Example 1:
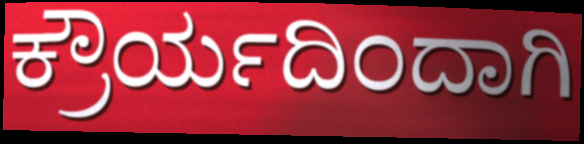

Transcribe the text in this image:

ಕ್ರೌರ್ಯದಿಂದಾಗಿ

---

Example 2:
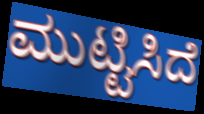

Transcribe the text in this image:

ಮುಟ್ಟಿಸಿದೆ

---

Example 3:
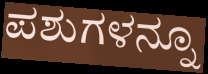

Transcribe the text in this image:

ಪಶುಗಳನ್ನೂ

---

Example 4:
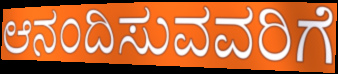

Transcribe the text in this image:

ಆನಂದಿಸುವವರಿಗೆ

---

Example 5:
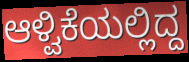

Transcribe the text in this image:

ಆಳ್ವಿಕೆಯಲ್ಲಿದ್ದ